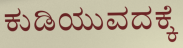
ಕುಡಿಯುವದಕ್ಕೆ